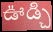
ఊడ్చి